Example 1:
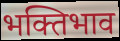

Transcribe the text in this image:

भक्तिभाव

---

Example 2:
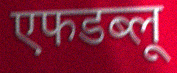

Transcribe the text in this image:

एफडब्लू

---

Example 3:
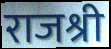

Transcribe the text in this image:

राजश्री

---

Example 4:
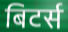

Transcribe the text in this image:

बिटर्स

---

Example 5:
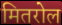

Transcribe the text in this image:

मितरोल